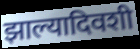
झाल्यादिवशी